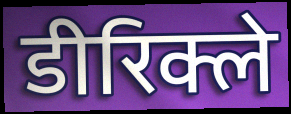
डीरिक्ले